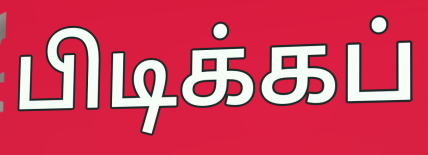
பிடிக்கப்